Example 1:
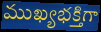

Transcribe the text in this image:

ముఖ్యభక్తిగా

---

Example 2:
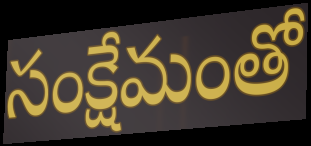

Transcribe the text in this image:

సంక్షేమంతో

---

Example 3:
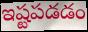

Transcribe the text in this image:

ఇష్టపడడం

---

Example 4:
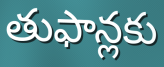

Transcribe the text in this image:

తుఫాన్లకు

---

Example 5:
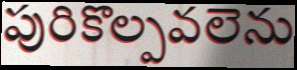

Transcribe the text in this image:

పురికొల్పవలెను